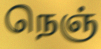
நெஞ்